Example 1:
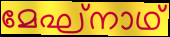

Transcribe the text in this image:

മേഘ്നാഥ്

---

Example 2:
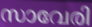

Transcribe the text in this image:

സാവേരി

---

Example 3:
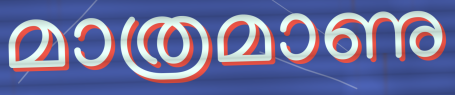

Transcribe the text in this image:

മാത്രമാണു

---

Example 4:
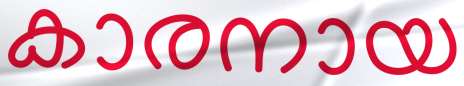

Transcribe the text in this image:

കാരനായ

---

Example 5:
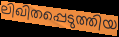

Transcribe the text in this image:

ലിഖിതപ്പെടുത്തിയ